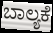
ಬಾಲ್ಯಕೆ